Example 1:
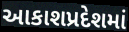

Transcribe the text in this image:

આકાશપ્રદેશમાં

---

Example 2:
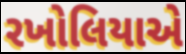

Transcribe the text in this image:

રખોલિયાએ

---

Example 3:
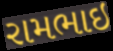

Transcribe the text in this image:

રામભાઇ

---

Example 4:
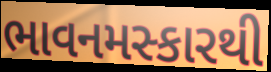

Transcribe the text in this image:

ભાવનમસ્કારથી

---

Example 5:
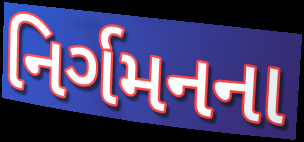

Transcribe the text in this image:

નિર્ગમનના